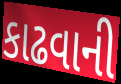
કાઢવાની